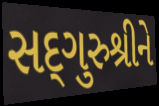
સદ્‌ગુરુશ્રીને